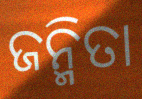
ଜନ୍ମିତା